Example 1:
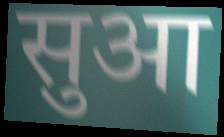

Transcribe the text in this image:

सुआ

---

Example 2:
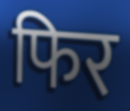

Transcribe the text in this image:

फिर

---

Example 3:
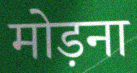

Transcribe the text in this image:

मोड़ना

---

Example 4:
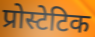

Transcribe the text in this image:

प्रोस्टेटिक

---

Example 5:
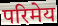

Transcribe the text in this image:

परिमेय